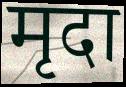
मृदा